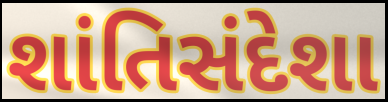
શાંતિસંદેશા